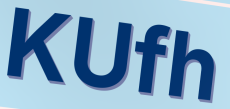
KUfh